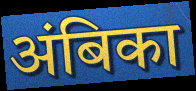
अंबिका